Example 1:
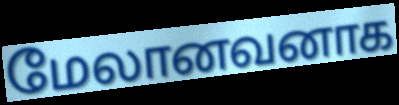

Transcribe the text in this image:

மேலானவனாக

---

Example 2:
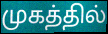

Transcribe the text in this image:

முகத்தில்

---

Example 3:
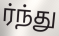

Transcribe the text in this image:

ர்ந்து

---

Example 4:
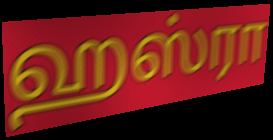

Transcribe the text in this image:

ஹஸ்ரா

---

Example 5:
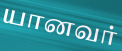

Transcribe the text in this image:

யானவர்